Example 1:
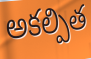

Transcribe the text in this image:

అకల్పిత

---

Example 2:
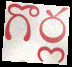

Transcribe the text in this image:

గొర్ల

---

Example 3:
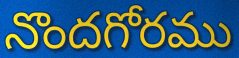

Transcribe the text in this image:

నొందగోరము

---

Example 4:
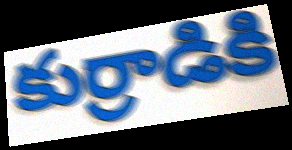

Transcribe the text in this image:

కుర్రాడికి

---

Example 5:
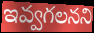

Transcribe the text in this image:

ఇవ్వగలనని